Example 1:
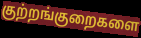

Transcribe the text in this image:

குற்றங்குறைகளை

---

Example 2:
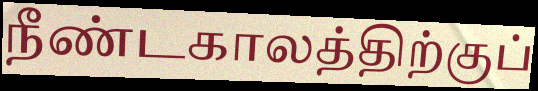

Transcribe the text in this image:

நீண்டகாலத்திற்குப்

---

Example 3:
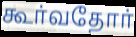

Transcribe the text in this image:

கூர்வதோர்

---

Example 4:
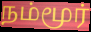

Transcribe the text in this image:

நம்மூர்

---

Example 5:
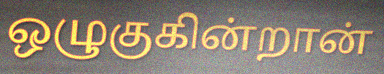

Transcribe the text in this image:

ஒழுகுகின்றான்